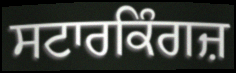
ਸਟਾਰਕਿੰਗਜ਼